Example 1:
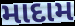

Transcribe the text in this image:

માદામ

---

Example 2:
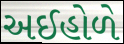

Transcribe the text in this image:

અઈહોળે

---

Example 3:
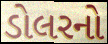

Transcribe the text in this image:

ડોલરનો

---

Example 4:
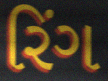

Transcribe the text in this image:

રિંગ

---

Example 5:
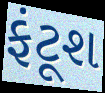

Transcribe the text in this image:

ફંટૂશ